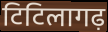
टिटिलागढ़